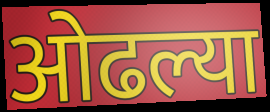
ओढल्या